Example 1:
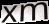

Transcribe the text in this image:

xm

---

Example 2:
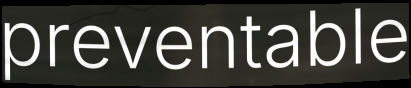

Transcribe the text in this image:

preventable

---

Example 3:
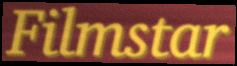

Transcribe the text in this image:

Filmstar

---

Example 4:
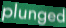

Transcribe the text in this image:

plunged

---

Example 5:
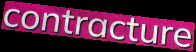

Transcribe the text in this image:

contracture